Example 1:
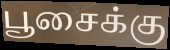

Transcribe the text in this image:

பூசைக்கு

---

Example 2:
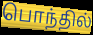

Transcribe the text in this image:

பொந்தில்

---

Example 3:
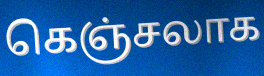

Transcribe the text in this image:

கெஞ்சலாக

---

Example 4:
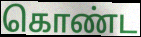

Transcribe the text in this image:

கொண்ட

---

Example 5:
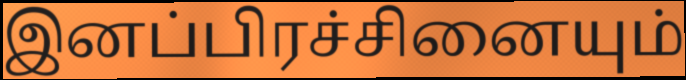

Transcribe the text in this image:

இனப்பிரச்சினையும்